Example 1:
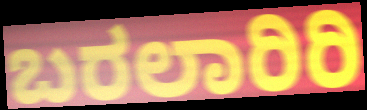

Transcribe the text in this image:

ಬರಲಾರಿರಿ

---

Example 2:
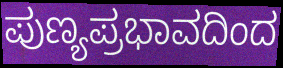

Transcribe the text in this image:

ಪುಣ್ಯಪ್ರಭಾವದಿಂದ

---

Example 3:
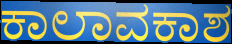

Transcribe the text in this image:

ಕಾಲಾವಕಾಶ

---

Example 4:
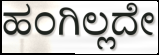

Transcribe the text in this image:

ಹಂಗಿಲ್ಲದೇ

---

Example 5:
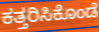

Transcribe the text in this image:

ಕತ್ತರಿಸಿಕೊಂಡೆ